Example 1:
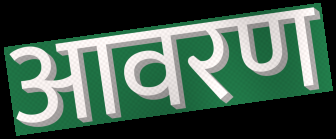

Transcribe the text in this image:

आवरण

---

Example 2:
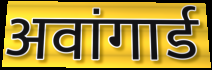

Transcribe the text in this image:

अवांगार्ड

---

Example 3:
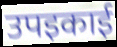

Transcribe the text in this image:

उपइकाई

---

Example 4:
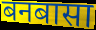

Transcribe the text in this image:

बनबासा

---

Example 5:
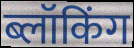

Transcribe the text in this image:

ब्लॉकिंग